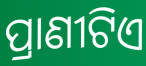
ପ୍ରାଣୀଟିଏ